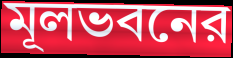
মূলভবনের